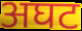
अघट